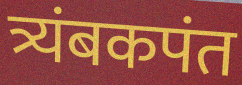
त्र्यंबकपंत